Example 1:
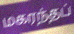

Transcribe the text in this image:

மகரந்தப்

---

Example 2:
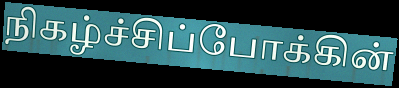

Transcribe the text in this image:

நிகழ்ச்சிப்போக்கின்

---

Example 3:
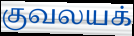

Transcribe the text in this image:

குவலயக்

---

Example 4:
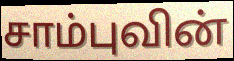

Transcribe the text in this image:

சாம்புவின்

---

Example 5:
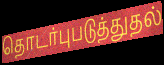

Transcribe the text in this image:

தொடர்புபடுத்துதல்